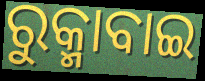
ରୁକ୍ମାବାଇ